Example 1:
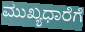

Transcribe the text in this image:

ಮುಖ್ಯಧಾರೆಗೆ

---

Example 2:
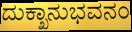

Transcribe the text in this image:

ದುಕ್ಖಾನುಭವನಂ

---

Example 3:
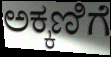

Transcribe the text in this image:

ಅಕ್ಕಣಿಗೆ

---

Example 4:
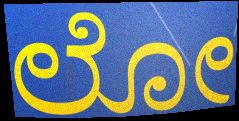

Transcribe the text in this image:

ಲೋ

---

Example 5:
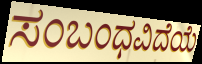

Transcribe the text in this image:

ಸಂಬಂಧವಿದೆಯೆ